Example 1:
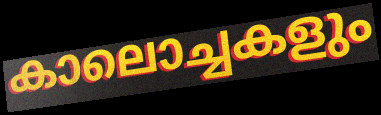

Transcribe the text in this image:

കാലൊച്ചകളും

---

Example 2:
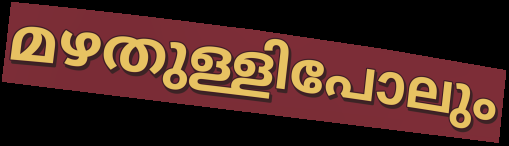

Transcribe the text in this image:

മഴതുള്ളിപോലും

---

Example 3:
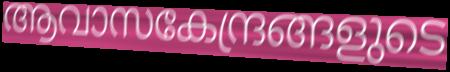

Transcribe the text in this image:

ആവാസകേന്ദ്രങ്ങളുടെ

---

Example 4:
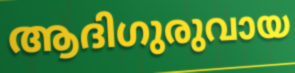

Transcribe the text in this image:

ആദിഗുരുവായ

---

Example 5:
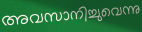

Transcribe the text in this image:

അവസാനിച്ചുവെന്നു